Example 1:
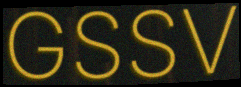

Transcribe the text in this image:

GSSV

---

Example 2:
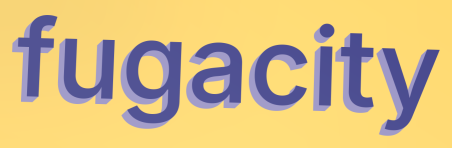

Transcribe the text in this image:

fugacity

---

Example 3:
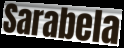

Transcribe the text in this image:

Sarabela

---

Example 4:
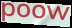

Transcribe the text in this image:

poow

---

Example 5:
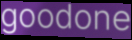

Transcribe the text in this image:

goodone